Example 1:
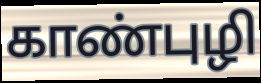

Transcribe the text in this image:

காண்புழி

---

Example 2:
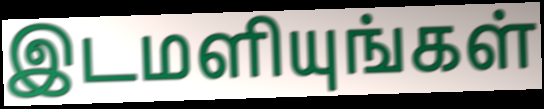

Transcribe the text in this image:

இடமளியுங்கள்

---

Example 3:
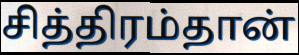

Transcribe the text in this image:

சித்திரம்தான்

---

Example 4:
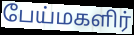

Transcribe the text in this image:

பேய்மகளிர்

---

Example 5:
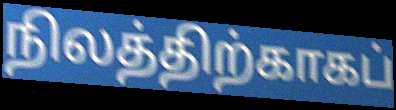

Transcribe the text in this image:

நிலத்திற்காகப்